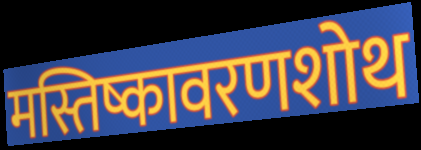
मस्तिष्कावरणशोथ